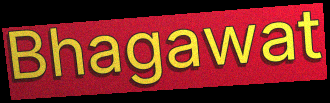
Bhagawat